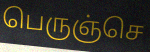
பெருஞ்செ